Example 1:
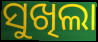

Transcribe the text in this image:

ସୁଖିଲା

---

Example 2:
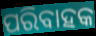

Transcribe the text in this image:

ପରିବାହକ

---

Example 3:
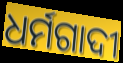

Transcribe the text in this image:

ଧର୍ମଗାଦୀ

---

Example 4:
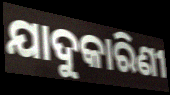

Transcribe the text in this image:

ଯାଦୁକାରିଣୀ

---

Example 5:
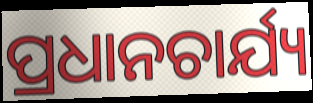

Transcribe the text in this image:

ପ୍ରଧାନଚାର୍ଯ୍ୟ